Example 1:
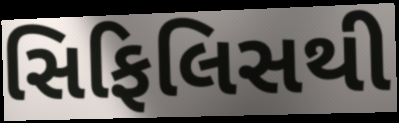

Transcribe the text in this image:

સિફિલિસથી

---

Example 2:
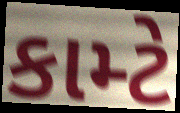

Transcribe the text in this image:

કામ્ટે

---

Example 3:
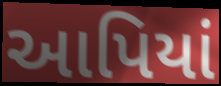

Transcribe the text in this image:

આપિયાં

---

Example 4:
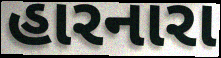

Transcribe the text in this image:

હારનારા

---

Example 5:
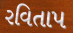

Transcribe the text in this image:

રવિતાપ